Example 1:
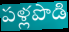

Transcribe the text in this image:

పళ్లపొడి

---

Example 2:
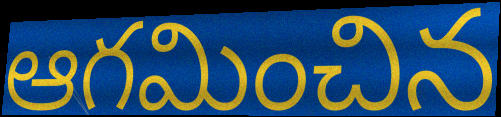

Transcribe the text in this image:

ఆగమించిన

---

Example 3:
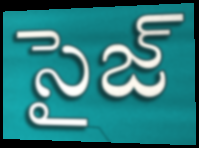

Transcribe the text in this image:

సైజ్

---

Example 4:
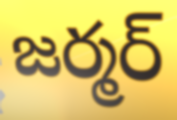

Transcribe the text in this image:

జర్మర్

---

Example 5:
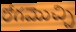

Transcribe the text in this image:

రోగమొచ్చి